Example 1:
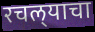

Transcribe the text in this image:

रचल्याचा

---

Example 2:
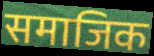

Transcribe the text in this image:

समाजिक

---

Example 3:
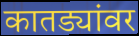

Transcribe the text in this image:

कातड्यांवर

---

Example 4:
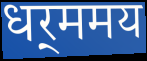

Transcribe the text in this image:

धर्ममय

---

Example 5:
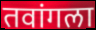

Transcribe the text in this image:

तवांगला